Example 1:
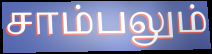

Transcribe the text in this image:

சாம்பலும்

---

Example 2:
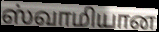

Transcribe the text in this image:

ஸ்வாமியான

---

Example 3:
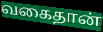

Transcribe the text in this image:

வகைதான்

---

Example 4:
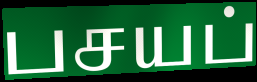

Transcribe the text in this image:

பசயப்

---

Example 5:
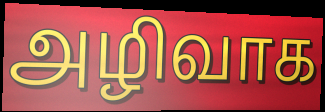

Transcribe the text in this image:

அழிவாக